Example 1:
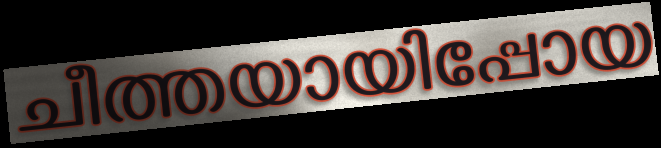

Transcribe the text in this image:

ചീത്തയായിപ്പോയ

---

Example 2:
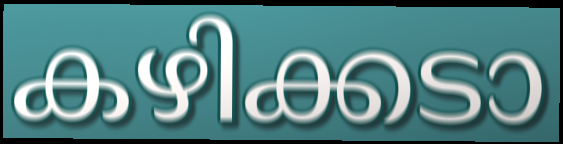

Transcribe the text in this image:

കഴിക്കടാ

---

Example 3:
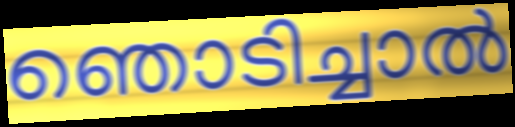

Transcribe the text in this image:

ഞൊടിച്ചാൽ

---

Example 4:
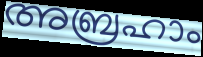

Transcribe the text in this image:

അബ്രഹാം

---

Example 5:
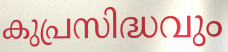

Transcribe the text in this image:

കുപ്രസിദ്ധവും